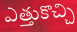
ఎత్తుకొచ్చి